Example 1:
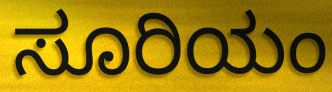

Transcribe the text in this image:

ಸೂರಿಯಂ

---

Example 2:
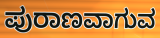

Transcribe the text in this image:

ಪುರಾಣವಾಗುವ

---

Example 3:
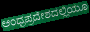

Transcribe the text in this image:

ಆಂಧ್ರಪ್ರದೇಶದಲ್ಲಿಯೂ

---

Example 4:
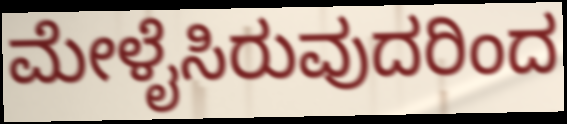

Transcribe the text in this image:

ಮೇಳೈಸಿರುವುದರಿಂದ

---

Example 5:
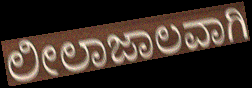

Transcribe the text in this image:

ಲೀಲಾಜಾಲವಾಗಿ